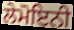
ਲੇਮੋਇਨੀ